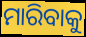
ମାରିବାକୁ